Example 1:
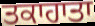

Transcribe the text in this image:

ਤਕਾਹਾਤਾ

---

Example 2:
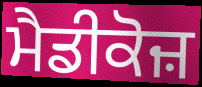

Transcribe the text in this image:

ਮੈਡੀਕੋਜ਼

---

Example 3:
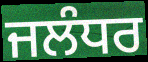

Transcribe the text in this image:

ਜਲੰਧਰ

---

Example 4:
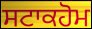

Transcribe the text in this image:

ਸਟਾਕਹੋਮ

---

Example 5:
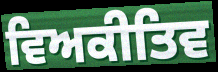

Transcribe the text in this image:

ਵਿਅਕੀਤਿਵ